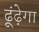
ढूंढ़ेगा